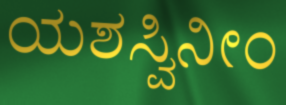
ಯಶಸ್ವಿನೀಂ